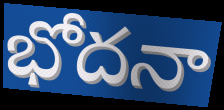
భోదనా